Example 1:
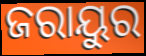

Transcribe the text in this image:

ଜରାୟୁର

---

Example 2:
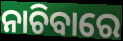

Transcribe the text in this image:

ନାଚିବାରେ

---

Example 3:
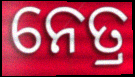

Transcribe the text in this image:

ନେତ୍ର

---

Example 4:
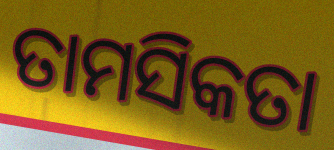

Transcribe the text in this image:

ତାମସିକତା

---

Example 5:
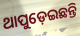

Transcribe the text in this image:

ଥାପୁଡ଼େଇଛନ୍ତି